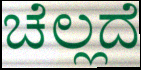
ಚೆಲ್ಲದೆ